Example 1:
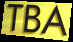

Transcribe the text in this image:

TBA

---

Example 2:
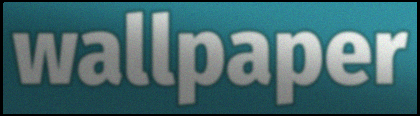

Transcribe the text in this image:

wallpaper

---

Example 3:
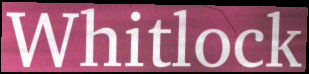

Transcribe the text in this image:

Whitlock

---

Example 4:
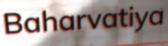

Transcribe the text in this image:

Baharvatiya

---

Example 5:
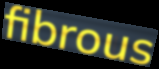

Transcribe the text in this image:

fibrous